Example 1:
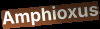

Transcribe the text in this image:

Amphioxus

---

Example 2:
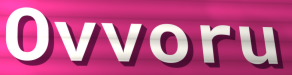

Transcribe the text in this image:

Ovvoru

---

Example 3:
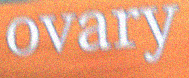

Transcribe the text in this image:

ovary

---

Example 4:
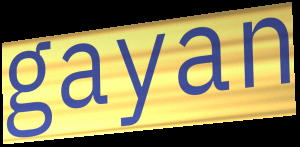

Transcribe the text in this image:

gayan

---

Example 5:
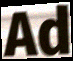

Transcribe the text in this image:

Ad